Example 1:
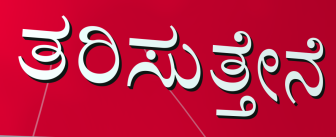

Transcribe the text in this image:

ತರಿಸುತ್ತೇನೆ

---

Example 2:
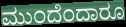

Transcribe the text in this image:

ಮುಂದೆಂದಾರೂ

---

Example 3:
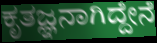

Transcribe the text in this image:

ಕೃತಜ್ಞನಾಗಿದ್ದೇನೆ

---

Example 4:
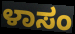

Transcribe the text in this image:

ಳಾಸಂ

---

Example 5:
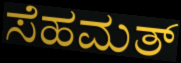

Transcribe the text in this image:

ಸೆಹಮತ್